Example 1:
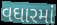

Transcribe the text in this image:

વઘારમાં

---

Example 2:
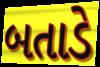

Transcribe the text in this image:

બતાડે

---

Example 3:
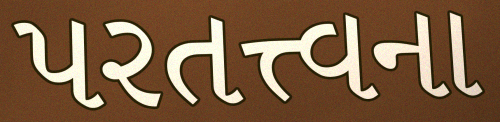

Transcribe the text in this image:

પરતત્ત્વના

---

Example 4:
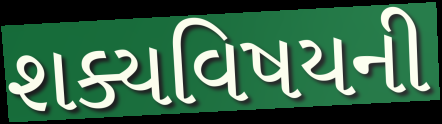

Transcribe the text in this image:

શક્યવિષયની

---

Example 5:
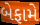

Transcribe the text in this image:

બેફામે